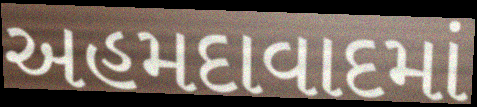
અહમદાવાદમાં